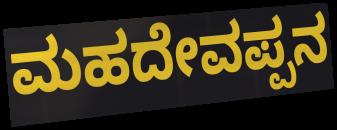
ಮಹದೇವಪ್ಪನ